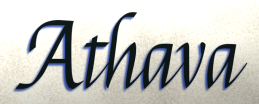
Athava